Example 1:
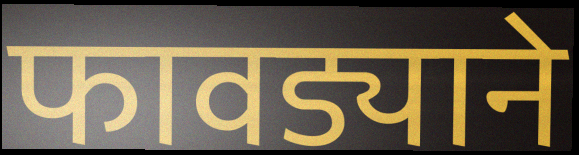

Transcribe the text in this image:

फावड्याने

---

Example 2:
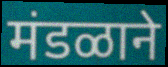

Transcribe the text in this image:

मंडळाने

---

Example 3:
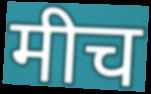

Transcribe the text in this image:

मीच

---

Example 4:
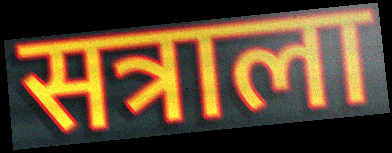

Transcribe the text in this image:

सत्राला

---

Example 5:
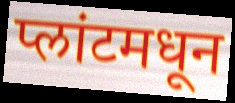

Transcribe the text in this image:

प्लांटमधून